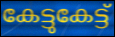
കേട്ടുകേട്ട്